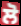
ਲੋ